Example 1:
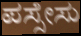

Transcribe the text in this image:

ಪಸ್ಸೇಸು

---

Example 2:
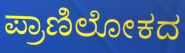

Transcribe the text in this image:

ಪ್ರಾಣಿಲೋಕದ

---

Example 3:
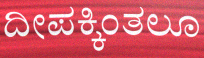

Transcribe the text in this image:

ದೀಪಕ್ಕಿಂತಲೂ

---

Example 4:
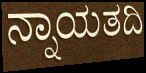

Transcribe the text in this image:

ನ್ನಾಯತದಿ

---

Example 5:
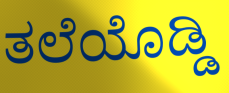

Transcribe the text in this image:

ತಲೆಯೊಡ್ಡಿ